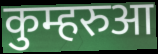
कुम्हरुआ